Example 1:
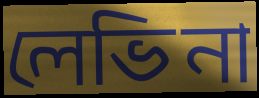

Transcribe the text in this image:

লেভিনা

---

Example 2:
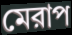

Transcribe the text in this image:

মেরাপ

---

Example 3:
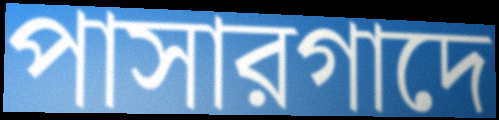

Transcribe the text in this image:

পাসারগাদে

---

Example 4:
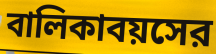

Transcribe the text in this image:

বালিকাবয়সের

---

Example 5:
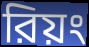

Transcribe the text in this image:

রিয়ং